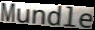
Mundle